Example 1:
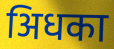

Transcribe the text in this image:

अिधका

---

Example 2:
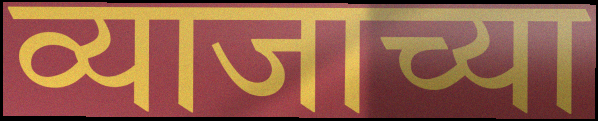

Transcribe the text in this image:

व्याजाच्या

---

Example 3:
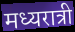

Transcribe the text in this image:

मध्यरात्री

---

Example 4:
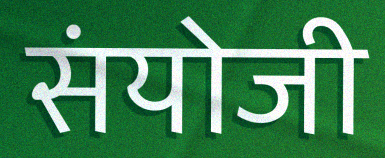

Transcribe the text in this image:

संयोजी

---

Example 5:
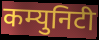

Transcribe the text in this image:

कम्युनिटी